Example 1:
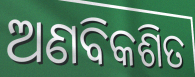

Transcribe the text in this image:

ଅଣବିକଶିତ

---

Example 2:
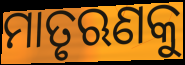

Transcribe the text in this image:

ମାତୃଋଣକୁ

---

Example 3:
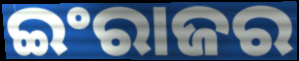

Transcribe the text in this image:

ଇଂରାଜର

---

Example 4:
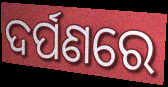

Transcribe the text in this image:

ଦର୍ପଣରେ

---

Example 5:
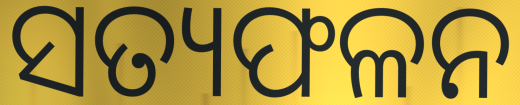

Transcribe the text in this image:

ସତ୍ୟଫଳନ